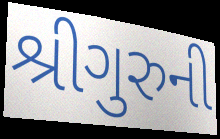
શ્રીગુરુની